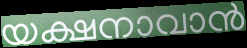
യക്ഷനാവാൻ